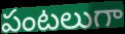
పంటలుగా